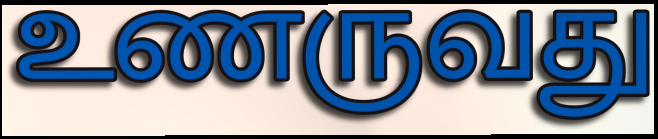
உணருவது